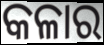
କଳାର